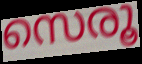
സെരൂ